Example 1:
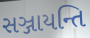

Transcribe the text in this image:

સઞ્જાયન્તિ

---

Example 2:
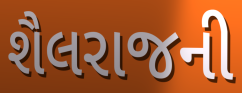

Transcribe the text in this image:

શૈલરાજની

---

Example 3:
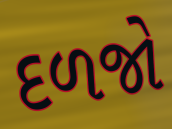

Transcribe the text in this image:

દળજો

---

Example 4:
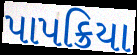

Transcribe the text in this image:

પાપક્રિયા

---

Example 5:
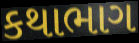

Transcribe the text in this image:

કથાભાગ